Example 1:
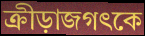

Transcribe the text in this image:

ক্রীড়াজগৎকে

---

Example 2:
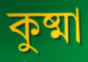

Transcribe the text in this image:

কুষ্মা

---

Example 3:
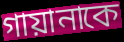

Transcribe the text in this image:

গায়ানাকে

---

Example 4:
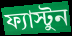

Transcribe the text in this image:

ফ্যাস্টুন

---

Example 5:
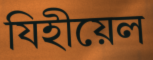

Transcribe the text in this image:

যিহীয়েল